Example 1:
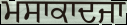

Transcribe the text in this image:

ਮਸਾਕਾਦਜਾ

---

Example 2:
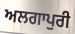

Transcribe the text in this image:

ਅਲਗਾਪੁਰੀ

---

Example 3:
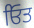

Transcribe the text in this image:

ਓਿਤ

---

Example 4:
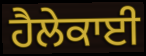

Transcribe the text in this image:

ਹੈਲੇਕਾਈ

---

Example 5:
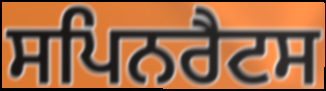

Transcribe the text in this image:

ਸਪਿਨਰੈਟਸ